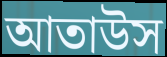
আতাউস